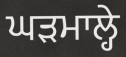
ਘੜਮਾਲ੍ਹੇ